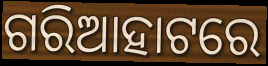
ଗରିଆହାଟରେ